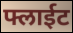
फ्लाईट